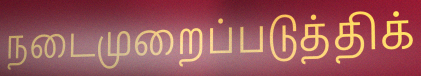
நடைமுறைப்படுத்திக்